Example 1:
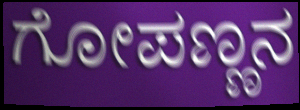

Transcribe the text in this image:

ಗೋಪಣ್ಣನ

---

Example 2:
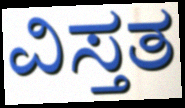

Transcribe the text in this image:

ವಿಸ್ತತ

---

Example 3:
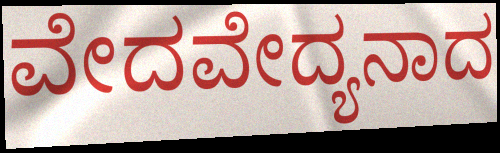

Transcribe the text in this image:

ವೇದವೇದ್ಯನಾದ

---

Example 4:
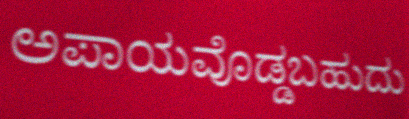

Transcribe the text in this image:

ಅಪಾಯವೊಡ್ಡಬಹುದು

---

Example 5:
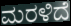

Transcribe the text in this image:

ಮರಳಿದೆ